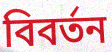
বিবর্তন